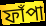
ফাঁপা